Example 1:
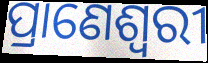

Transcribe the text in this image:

ପ୍ରାଣେଶ୍ୱରୀ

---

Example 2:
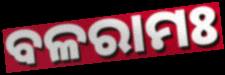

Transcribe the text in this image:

ବଳରାମଃ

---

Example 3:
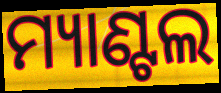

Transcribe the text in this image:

ମ୍ୟାଣ୍ଟଲ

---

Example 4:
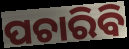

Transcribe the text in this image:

ପଚାରିବି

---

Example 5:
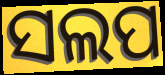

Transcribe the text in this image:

ସଲପ